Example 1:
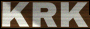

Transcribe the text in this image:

KRK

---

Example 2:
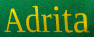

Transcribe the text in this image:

Adrita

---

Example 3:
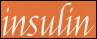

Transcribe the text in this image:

insulin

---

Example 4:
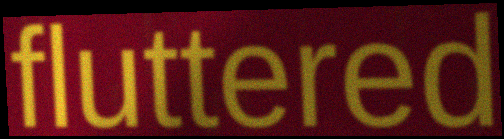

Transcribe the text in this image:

fluttered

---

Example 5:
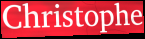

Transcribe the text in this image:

Christophe